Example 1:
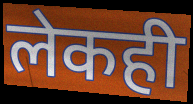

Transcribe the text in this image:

लेकही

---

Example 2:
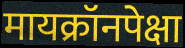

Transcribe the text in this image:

मायक्रॉनपेक्षा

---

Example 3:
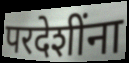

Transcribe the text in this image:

परदेशींना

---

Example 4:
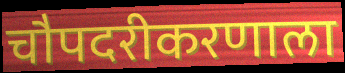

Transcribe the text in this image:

चौपदरीकरणाला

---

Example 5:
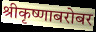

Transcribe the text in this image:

श्रीकृष्णाबरोबर